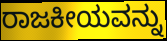
ರಾಜಕೀಯವನ್ನು